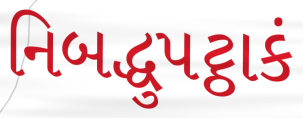
નિબદ્ધુપટ્ઠાકં